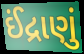
ઈંદ્રાણું